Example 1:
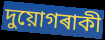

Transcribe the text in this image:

দুয়োগৰাকী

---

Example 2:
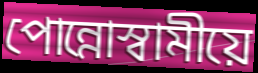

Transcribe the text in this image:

পোন্নোস্বামীয়ে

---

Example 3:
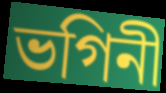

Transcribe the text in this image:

ভগিনী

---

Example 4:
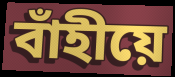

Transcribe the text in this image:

বাঁহীয়ে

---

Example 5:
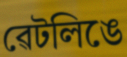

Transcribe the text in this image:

ৱেটলিঙে